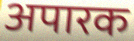
अपारक